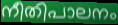
നീതിപാലനം